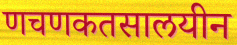
णचणकतसालयीन